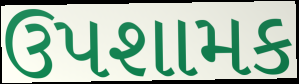
ઉપશામક